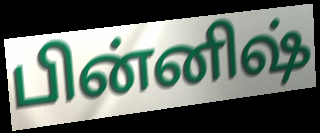
பின்னிஷ்